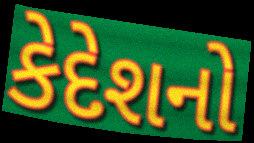
કેદેશનો